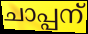
ചാപ്പന്